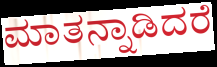
ಮಾತನ್ನಾಡಿದರೆ